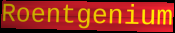
Roentgenium